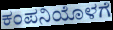
ಕಂಪನಿಯೊಳಗೆ